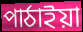
পাঠাইয়া